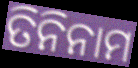
ତିନିନାମ